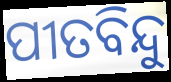
ପୀତବିନ୍ଦୁ